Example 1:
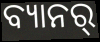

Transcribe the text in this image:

ବ୍ୟାନର୍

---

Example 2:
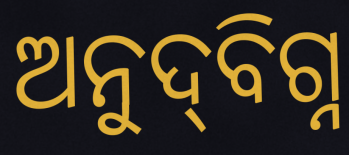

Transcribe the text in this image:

ଅନୁଦ୍‌ବିଗ୍ନ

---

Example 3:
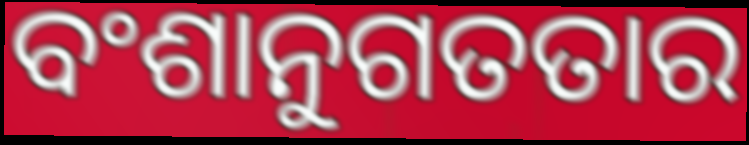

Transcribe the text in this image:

ବଂଶାନୁଗତତାର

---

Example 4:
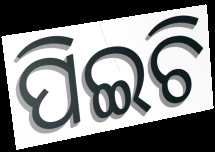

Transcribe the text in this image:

ପିଇଚି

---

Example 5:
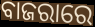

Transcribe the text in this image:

ବାଜରାରେ